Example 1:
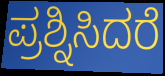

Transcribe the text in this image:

ಪ್ರಶ್ನಿಸಿದರೆ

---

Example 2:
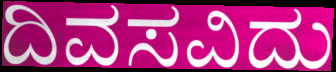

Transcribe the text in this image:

ದಿವಸವಿದು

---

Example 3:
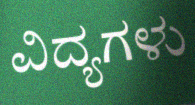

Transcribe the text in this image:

ವಿದ್ಯಗಳು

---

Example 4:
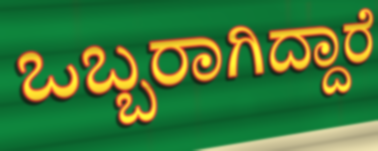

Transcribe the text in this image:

ಒಬ್ಬರಾಗಿದ್ದಾರೆ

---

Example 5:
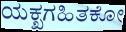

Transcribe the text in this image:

ಯಕ್ಖಗಹಿತಕೋ